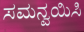
ಸಮನ್ವಯಿಸಿ